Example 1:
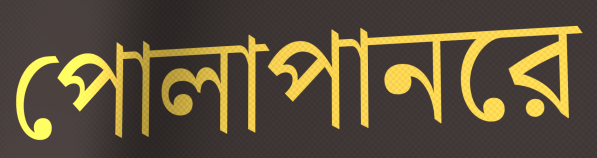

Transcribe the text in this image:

পোলাপানরে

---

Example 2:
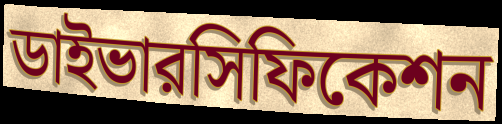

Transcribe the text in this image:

ডাইভারসিফিকেশন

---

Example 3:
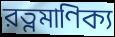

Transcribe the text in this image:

রত্নমাণিক্য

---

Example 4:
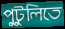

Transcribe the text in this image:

পুটুলিতে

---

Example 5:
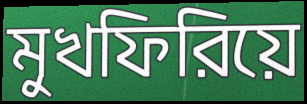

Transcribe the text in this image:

মুখফিরিয়ে